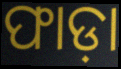
ଫାଡ଼ା